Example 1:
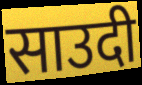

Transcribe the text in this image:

साउदी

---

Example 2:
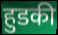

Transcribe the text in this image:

हुडकी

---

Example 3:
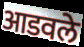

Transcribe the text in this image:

आडवले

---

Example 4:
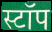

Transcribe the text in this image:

स्टॉप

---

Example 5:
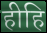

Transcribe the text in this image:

हीहि